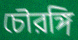
চৌরঙ্গি